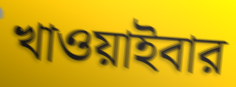
খাওয়াইবার